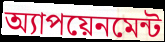
অ্যাপয়েনমেন্ট